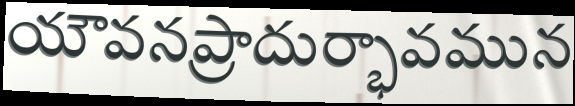
యౌవనప్రాదుర్భావమున